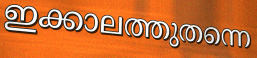
ഇക്കാലത്തുതന്നെ